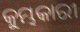
କୁମ୍ଭକାରୀ